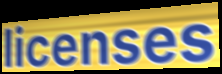
licenses